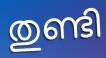
തുണ്ടി